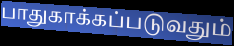
பாதுகாக்கப்படுவதும்